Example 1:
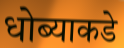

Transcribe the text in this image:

धोब्याकडे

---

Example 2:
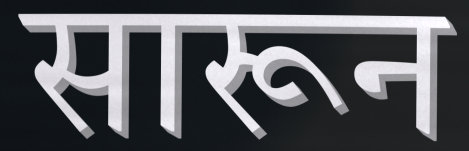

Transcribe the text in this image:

सारून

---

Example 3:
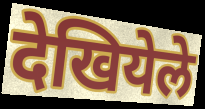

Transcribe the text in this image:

देखियेले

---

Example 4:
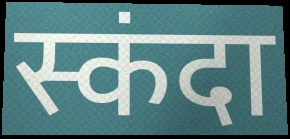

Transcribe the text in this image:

स्कंदा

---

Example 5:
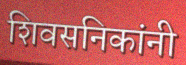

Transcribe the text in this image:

शिवसनिकांनी